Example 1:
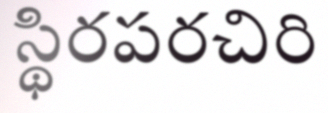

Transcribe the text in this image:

స్థిరపరచిరి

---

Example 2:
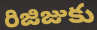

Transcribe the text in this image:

రిజిజుకు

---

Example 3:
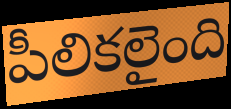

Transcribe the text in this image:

పీలికలైంది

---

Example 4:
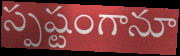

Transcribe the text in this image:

స్పష్టంగానూ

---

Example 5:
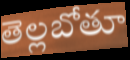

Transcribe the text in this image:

తెల్లబోతూ